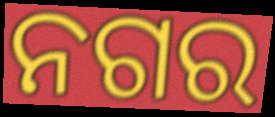
ନଗର